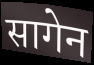
सागेन